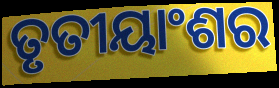
ତୃତୀୟାଂଶର